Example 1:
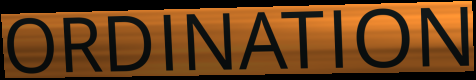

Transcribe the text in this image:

ORDINATION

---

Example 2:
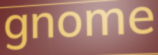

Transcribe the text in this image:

gnome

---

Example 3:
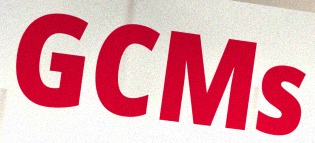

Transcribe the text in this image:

GCMs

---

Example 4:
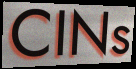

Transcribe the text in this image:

CINs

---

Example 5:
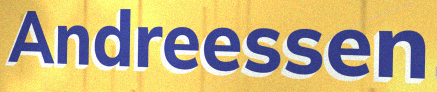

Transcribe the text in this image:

Andreessen